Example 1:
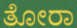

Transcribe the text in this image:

ತೋರಾ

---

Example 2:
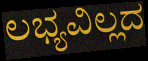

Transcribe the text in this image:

ಲಭ್ಯವಿಲ್ಲದ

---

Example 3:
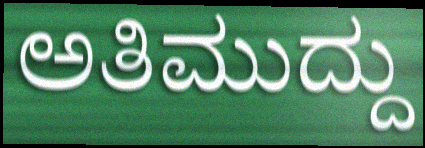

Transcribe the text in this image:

ಅತಿಮುದ್ದು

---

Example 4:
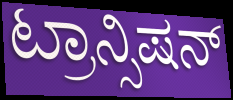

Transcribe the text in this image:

ಟ್ರಾನ್ಸಿಷನ್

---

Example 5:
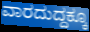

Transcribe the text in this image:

ವಾರದುದ್ದಕ್ಕೂ